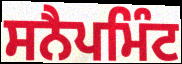
ਸਨੈਪਮਿੰਟ